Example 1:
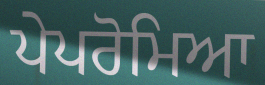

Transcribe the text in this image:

ਪੇਪਰੋਮਿਆ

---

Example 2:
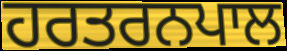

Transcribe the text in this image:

ਹਰਤਰਨਪਾਲ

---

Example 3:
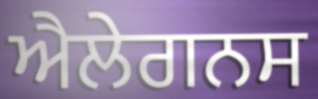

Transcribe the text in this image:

ਐਲੇਗਨਸ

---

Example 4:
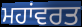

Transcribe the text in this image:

ਮਹਾਂਵਰਤ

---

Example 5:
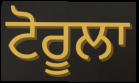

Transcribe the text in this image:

ਟੋਰੂਲਾ